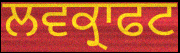
ਲਵਕ੍ਰਾਫਟ